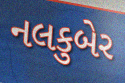
નલકુબેર